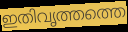
ഇതിവൃത്തത്തെ